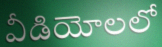
వీడియోలలో